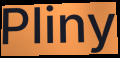
Pliny